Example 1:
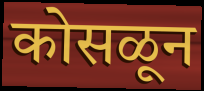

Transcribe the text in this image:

कोसळून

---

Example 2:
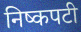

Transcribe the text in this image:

निष्कपटी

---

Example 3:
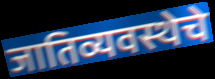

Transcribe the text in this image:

जातिव्यवस्थेचे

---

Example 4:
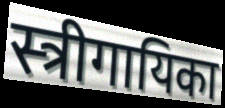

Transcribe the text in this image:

स्त्रीगायिका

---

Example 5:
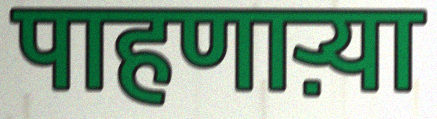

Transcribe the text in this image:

पाहणाऱ्‍या